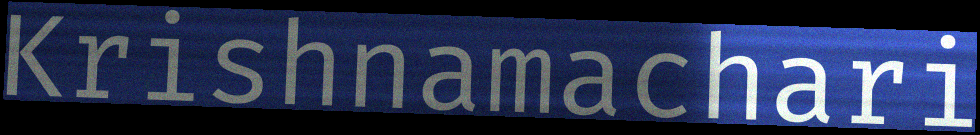
Krishnamachari